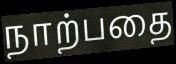
நாற்பதை